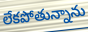
లేకపోతున్నాను